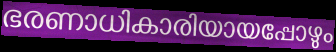
ഭരണാധികാരിയായപ്പോഴും